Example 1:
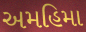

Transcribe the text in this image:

અમહિમા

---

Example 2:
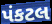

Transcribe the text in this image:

પંકટલ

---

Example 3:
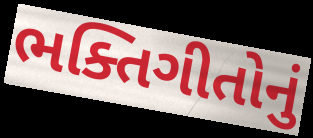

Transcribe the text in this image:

ભક્તિગીતોનું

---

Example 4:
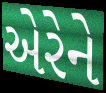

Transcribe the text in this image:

એરેને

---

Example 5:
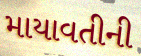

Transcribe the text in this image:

માયાવતીની